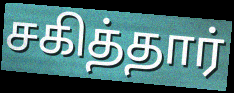
சகித்தார்